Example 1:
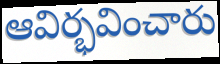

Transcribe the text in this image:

ఆవిర్భవించారు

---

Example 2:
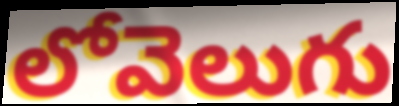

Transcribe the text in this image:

లోవెలుగు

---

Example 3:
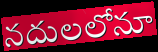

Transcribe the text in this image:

నదులలోనూ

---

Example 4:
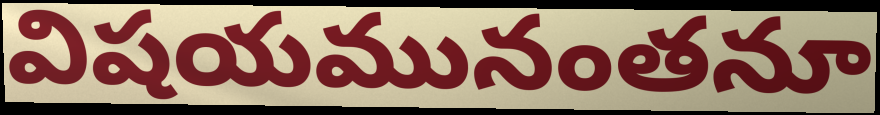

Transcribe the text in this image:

విషయమునంతనూ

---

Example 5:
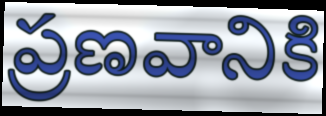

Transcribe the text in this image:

ప్రణవానికి